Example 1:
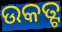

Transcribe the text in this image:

ଉକତ୍ଟ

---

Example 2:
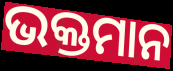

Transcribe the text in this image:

ଭକ୍ତମାନ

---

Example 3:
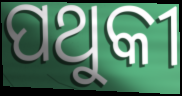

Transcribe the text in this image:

ପଥୁକୀ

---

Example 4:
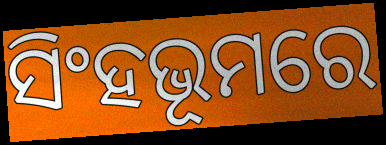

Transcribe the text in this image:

ସିଂହଭୂମରେ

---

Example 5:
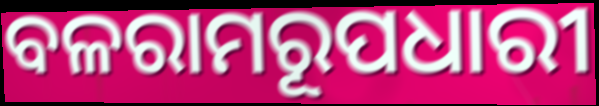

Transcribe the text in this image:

ବଳରାମରୂପଧାରୀ